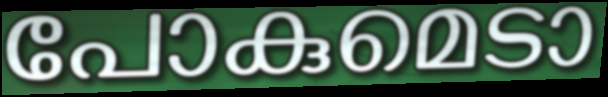
പോകുമെടാ